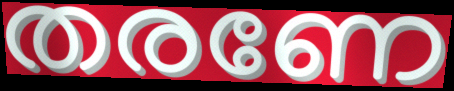
തരണേ